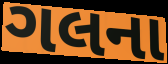
ગલના